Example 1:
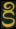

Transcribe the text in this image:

కి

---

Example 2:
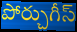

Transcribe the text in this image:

పోర్చుగీస్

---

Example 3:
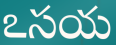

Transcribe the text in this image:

ఽసయ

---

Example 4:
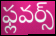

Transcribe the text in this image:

ఫ్లవర్స్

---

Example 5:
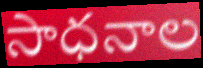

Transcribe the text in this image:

సాధనాల